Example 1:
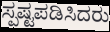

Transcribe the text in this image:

ಸ್ಪಷ್ಟಪಡಿಸಿದರು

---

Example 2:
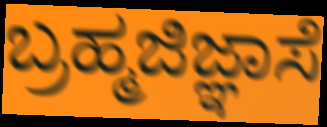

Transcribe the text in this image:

ಬ್ರಹ್ಮಜಿಜ್ಞಾಸೆ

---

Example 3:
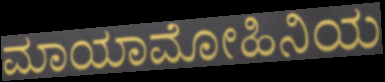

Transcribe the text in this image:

ಮಾಯಾಮೋಹಿನಿಯ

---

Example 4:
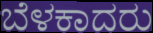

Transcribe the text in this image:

ಬೆಳಕಾದರು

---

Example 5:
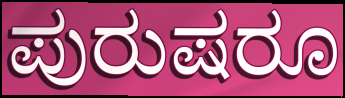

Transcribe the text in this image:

ಪುರುಷರೂ